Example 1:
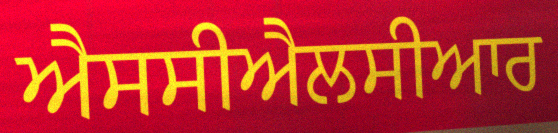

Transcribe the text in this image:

ਐਸਸੀਐਲਸੀਆਰ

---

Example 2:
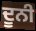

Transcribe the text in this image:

ਦੂਨੀ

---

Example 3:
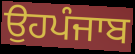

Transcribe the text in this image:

ਉਹਪੰਜਾਬ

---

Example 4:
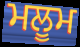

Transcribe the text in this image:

ਮਲੂਮ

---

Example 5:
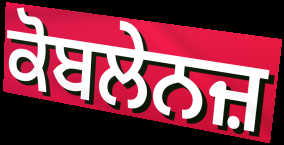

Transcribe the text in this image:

ਕੋਬਲੇਨਜ਼